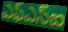
ఎఫ్ఎస్ఐ